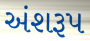
અંશરૂપ